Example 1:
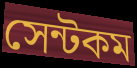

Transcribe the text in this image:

সেন্টকম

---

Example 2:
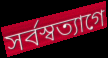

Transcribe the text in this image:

সর্বস্বত্যাগে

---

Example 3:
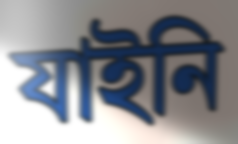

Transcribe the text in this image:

যাইনি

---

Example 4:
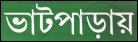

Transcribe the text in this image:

ভাটপাড়ায়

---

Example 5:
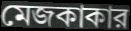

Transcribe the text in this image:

মেজকাকার